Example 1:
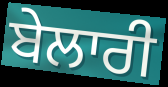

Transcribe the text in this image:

ਬੇਲਾਰੀ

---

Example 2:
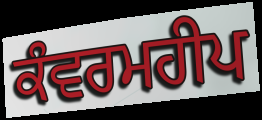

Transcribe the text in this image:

ਕੰਵਰਮਹੀਪ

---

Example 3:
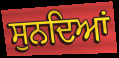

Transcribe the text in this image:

ਸੁਨਦਿਆਂ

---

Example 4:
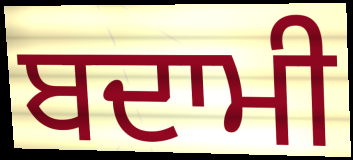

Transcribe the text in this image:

ਬਦਾਮੀ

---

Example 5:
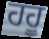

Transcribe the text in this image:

ਹਹੂ